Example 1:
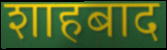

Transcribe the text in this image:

शाहबाद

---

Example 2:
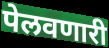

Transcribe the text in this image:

पेलवणारी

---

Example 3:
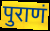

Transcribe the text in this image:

पुराणं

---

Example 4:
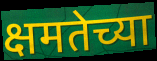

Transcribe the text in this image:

क्षमतेच्या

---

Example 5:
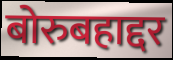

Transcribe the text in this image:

बोरुबहाद्दर